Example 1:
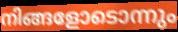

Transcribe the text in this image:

നിങ്ങളോടൊന്നും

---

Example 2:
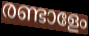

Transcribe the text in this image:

രണ്ടാളേം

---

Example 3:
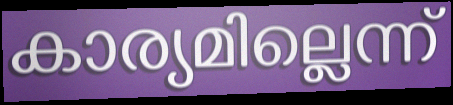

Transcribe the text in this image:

കാര്യമില്ലെന്ന്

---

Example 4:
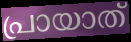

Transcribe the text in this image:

പ്രായാത്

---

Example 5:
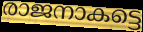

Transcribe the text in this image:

രാജനാകട്ടെ